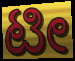
ಟೀ